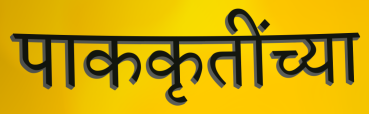
पाककृतींच्या